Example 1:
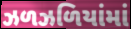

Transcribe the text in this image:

ઝળઝળિયાંમાં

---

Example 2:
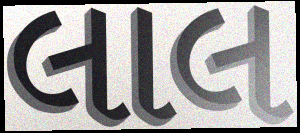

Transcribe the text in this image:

લાલ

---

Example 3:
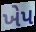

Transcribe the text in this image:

ખેપ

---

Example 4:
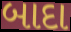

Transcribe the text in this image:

બાદા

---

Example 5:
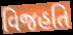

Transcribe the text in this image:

વિજહતિ